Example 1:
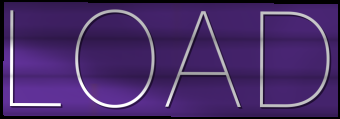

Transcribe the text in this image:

LOAD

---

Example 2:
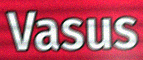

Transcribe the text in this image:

Vasus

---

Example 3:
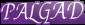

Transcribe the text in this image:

PALGAD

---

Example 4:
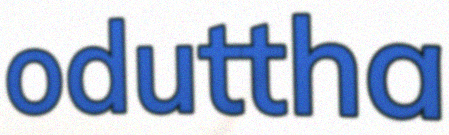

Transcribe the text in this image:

oduttha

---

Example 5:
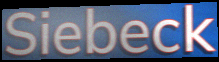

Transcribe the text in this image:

Siebeck